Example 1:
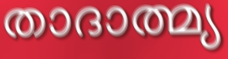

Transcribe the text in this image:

താദാത്മ്യ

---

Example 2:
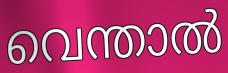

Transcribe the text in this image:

വെന്താൽ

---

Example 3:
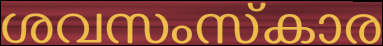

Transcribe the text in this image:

ശവസംസ്‌കാര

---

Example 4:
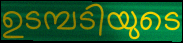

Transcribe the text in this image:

ഉടമ്പടിയുടെ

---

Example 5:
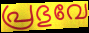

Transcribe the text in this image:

പ്രഭുവേ